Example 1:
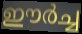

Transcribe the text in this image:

ഈർച്ച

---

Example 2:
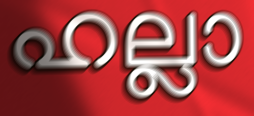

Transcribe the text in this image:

ഹല്ലാ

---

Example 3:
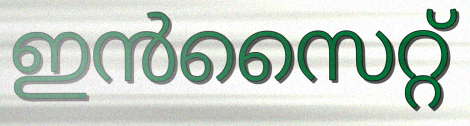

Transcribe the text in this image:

ഇൻസൈറ്റ്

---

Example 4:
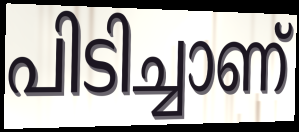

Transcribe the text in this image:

പിടിച്ചാണ്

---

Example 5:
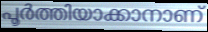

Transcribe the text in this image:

പൂർത്തിയാക്കാനാണ്